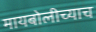
मायबोलीच्याच